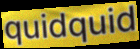
quidquid